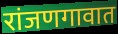
रांजणगावात